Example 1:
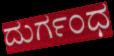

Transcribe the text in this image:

ದುರ್ಗಂಧ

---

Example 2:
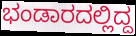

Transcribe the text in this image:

ಭಂಡಾರದಲ್ಲಿದ್ದ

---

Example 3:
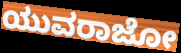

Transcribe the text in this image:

ಯುವರಾಜೋ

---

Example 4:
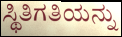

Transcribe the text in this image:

ಸ್ಥಿತಿಗತಿಯನ್ನು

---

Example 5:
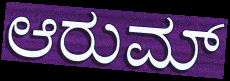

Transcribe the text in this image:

ಆರುಮ್